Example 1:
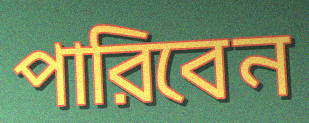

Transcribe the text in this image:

পারিবেন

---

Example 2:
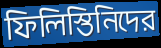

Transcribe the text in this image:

ফিলিস্তিনিদের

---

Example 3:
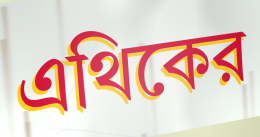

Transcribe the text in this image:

এথিকের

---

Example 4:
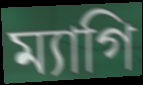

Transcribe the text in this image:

ম্যাগি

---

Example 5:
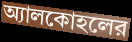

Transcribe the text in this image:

অ্যালকোহলের